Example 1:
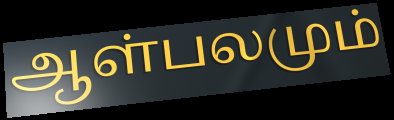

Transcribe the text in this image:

ஆள்பலமும்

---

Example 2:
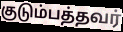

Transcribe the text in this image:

குடும்பத்தவர்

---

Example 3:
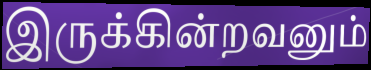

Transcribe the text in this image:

இருக்கின்றவனும்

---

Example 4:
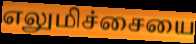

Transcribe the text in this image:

எலுமிச்சையை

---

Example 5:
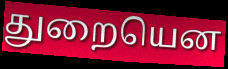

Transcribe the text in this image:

துறையென